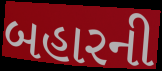
બહારની